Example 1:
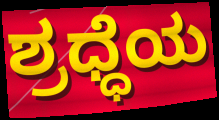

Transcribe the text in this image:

ಶ್ರಧ್ಧೆಯ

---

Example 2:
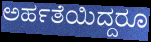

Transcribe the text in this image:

ಅರ್ಹತೆಯಿದ್ದರೂ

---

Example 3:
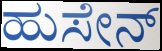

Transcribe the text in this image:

ಹುಸೇನ್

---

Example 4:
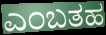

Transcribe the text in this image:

ಎಂಬತಹ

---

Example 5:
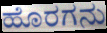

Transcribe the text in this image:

ಹೊರಗನು